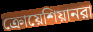
ক্রোয়েশিয়ানরা